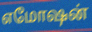
எமோஷன்